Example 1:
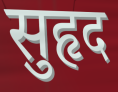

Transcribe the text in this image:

सुहृद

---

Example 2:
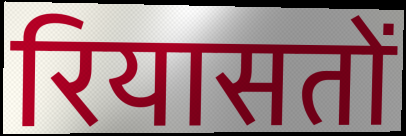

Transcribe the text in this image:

रियासतों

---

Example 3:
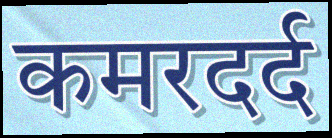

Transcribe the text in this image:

कमरदर्द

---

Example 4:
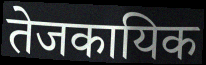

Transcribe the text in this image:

तेजकायिक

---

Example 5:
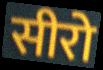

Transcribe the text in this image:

सीरो